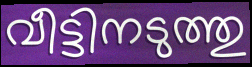
വീട്ടിനടുത്തു